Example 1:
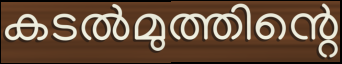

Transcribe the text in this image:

കടൽമുത്തിന്റെ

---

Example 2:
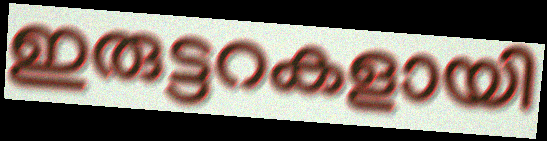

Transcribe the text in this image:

ഇരുട്ടറകളായി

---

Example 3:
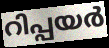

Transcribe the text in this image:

റിപ്പയർ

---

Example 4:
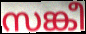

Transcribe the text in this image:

സങ്കീ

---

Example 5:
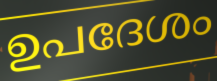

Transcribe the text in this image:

ഉപദേശം